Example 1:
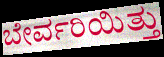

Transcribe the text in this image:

ಬೇರ್ವರಿಯಿತ್ತು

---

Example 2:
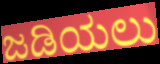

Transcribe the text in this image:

ಜಡಿಯಲು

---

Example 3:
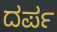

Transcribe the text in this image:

ದರ್ಪ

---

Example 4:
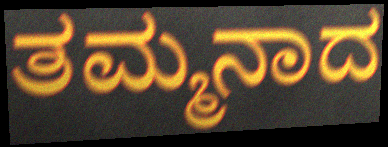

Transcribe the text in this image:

ತಮ್ಮನಾದ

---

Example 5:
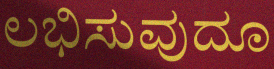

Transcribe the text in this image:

ಲಭಿಸುವುದೂ